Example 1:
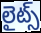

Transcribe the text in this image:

లైట్స్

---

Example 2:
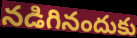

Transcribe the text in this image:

నడిగినందుకు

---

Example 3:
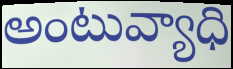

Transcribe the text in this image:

అంటువ్యాధి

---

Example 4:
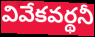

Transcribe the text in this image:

వివేకవర్థనీ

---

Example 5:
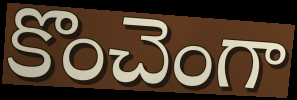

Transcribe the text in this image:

కొంచెంగా